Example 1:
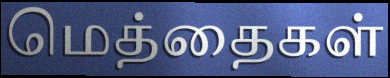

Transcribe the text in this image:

மெத்தைகள்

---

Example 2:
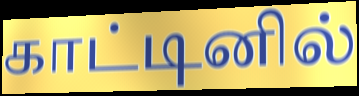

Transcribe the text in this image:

காட்டினில்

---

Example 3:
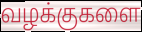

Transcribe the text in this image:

வழக்குகளை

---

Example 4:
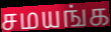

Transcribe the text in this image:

சமயங்க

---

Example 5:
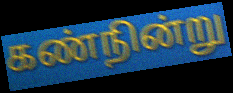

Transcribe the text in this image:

கண்நின்று